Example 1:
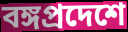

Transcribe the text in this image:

বঙ্গপ্রদেশে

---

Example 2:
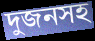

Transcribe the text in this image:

দুজনসহ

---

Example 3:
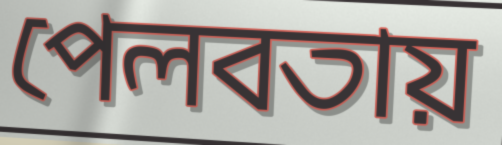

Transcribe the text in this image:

পেলবতায়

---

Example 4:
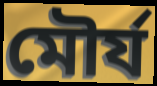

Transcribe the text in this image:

মৌর্য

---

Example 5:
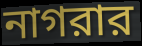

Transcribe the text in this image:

নাগরার